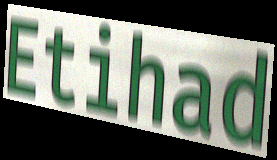
Etihad